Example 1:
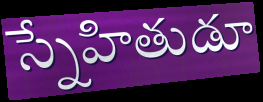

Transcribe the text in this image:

స్నేహితుడూ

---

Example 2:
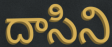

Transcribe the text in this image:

దాసిని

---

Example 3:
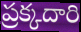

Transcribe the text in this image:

ప్రక్కదారి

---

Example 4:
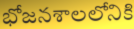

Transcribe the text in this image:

భోజనశాలలోనికి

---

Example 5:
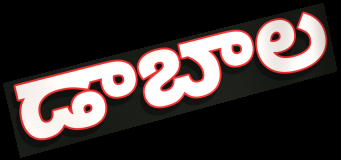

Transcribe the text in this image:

డాబాల